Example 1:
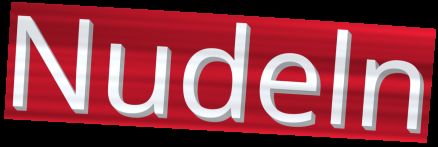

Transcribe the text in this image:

Nudeln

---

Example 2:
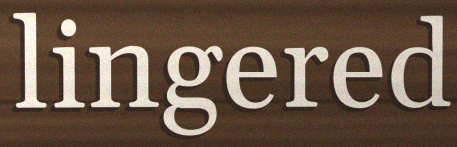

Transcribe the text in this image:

lingered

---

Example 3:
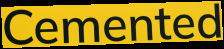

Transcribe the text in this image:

Cemented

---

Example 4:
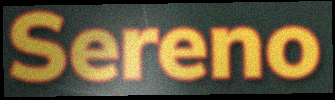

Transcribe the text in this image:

Sereno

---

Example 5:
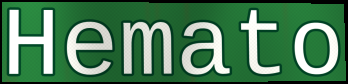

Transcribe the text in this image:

Hemato